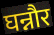
घन्नौर